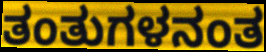
ತಂತುಗಳನಂತ